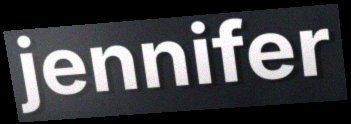
jennifer